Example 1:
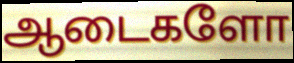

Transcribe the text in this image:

ஆடைகளோ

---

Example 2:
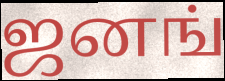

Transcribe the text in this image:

ஜனங்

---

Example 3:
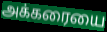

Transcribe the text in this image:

அக்கரையை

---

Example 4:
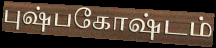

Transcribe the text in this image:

புஷ்பகோஷ்டம்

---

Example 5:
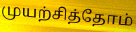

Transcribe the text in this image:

முயற்சித்தோம்